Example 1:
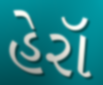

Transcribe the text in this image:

હેરૉ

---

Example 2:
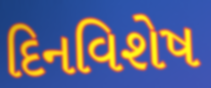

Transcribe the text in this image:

દિનવિશેષ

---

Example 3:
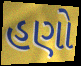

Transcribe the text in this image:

હણો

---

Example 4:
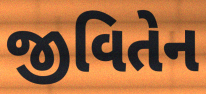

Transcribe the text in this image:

જીવિતેન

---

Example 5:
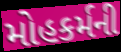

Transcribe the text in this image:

મોહકર્મની